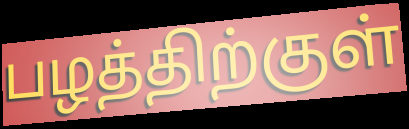
பழத்திற்குள்